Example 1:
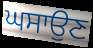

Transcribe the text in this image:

ਘਸਾਉਣ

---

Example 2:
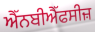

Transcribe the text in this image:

ਐੱਨਬੀਐੱਫਸੀਜ਼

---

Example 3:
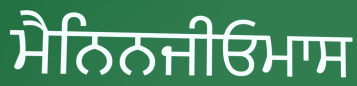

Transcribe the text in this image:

ਮੈਨਿਨਜੀਓਮਾਸ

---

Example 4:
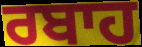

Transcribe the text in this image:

ਰਬਾਹ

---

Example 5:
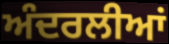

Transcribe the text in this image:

ਅੰਦਰਲੀਆਂ